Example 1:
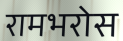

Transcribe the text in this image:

रामभरोस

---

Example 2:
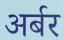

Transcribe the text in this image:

अर्बर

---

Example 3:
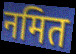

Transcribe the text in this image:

नमित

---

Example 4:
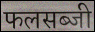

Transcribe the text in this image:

फलसब्जी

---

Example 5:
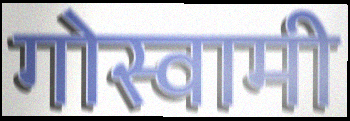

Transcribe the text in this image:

गोस्वामी